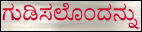
ಗುಡಿಸಲೊಂದನ್ನು